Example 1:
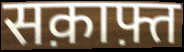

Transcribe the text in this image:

सक़ाफ़्त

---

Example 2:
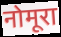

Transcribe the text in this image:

नोमूरा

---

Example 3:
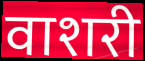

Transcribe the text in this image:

वाशरी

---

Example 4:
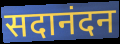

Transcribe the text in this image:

सदानंदन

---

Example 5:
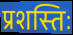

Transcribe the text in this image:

प्रशस्तिः